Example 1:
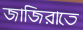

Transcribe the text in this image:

জাজিরাতে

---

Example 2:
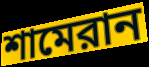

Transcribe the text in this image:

শামেরান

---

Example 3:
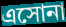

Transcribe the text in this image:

এসোনা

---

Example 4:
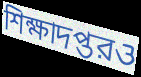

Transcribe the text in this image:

শিক্ষাদপ্তরও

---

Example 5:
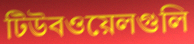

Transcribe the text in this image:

টিউবওয়েলগুলি